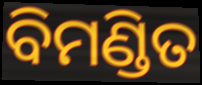
ବିମଣ୍ଡିତ